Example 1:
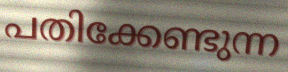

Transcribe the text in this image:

പതിക്കേണ്ടുന്ന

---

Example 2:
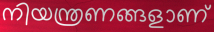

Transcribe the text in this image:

നിയന്ത്രണങ്ങളാണ്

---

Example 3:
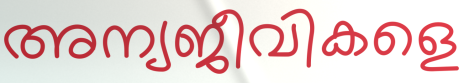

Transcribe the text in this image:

അന്യജീവികളെ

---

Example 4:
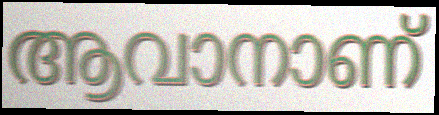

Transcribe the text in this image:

ആവാനാണ്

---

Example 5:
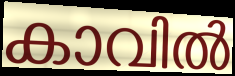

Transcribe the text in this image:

കാവിൽ